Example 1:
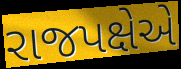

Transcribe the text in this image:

રાજપક્ષેએ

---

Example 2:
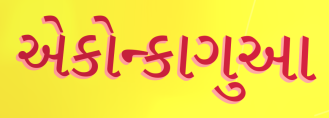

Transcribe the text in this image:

એકોન્કાગુઆ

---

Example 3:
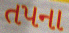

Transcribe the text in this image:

તપના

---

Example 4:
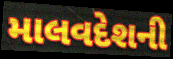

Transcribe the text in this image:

માલવદેશની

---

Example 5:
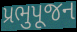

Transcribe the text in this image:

પ્રભુપૂજન